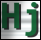
Hj